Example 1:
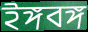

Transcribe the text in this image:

ইঙ্গবঙ্গ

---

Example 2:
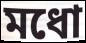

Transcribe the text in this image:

মধো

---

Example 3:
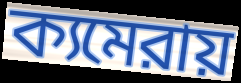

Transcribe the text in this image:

ক্যমেরায়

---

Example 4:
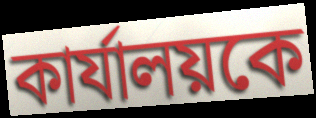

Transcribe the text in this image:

কার্যালয়কে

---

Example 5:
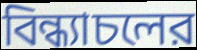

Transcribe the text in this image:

বিন্ধ্যাচলের